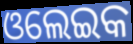
ଓଲେଇକ